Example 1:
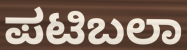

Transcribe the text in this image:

ಪಟಿಬಲಾ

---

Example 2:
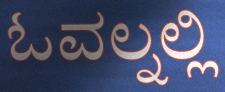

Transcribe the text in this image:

ಓವಲ್ನಲ್ಲಿ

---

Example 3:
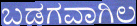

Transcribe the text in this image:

ಬಡಗವಾಗಿಲ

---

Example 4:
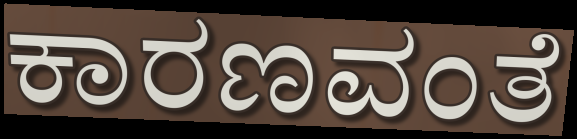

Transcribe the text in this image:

ಕಾರಣವಂತೆ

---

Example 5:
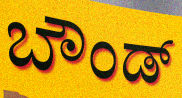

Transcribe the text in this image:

ಬೌಂಡ್